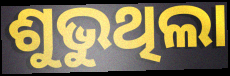
ଶୁଭୁଥିଲା